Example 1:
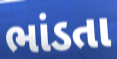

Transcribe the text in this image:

ભાંડતા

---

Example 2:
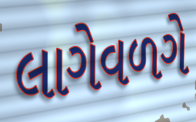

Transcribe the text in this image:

લાગેવળગે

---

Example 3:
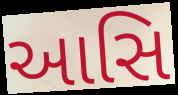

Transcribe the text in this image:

આસિ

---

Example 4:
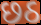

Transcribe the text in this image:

છઠ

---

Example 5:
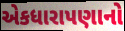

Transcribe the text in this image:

એકધારાપણાનો